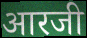
आरजी